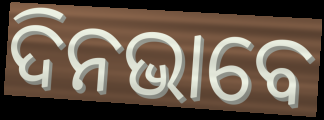
ଦିନଭାବେ